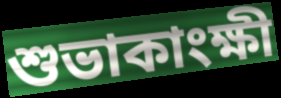
শুভাকাংক্ষী